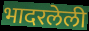
भादरलेली